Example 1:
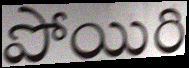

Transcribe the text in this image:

పోయిరి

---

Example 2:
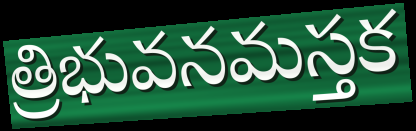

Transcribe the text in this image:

త్రిభువనమస్తక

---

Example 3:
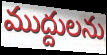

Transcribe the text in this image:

ముద్దులను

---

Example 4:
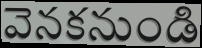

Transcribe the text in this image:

వెనకనుండి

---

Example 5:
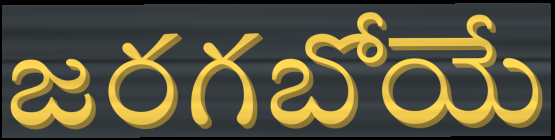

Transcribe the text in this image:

జరగబోయే